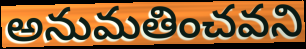
అనుమతించవని